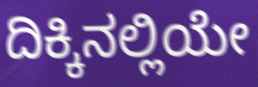
ದಿಕ್ಕಿನಲ್ಲಿಯೇ